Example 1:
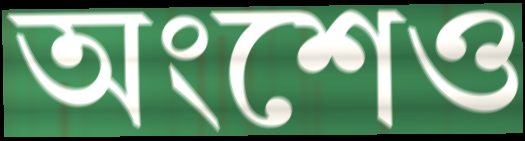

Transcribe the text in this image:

অংশেও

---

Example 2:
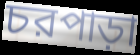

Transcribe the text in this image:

চরপাড়া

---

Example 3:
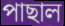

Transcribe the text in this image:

পাছাল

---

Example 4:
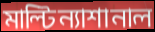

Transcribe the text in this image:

মাল্টিন্যাশানাল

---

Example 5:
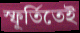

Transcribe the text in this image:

স্ফূর্তিতেই